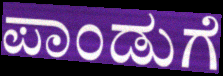
ಪಾಂಡುಗೆ